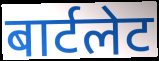
बार्टलेट